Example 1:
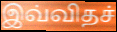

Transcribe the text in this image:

இவ்விதச்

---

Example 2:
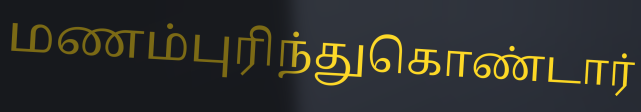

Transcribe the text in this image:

மணம்புரிந்துகொண்டார்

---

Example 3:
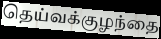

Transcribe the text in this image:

தெய்வக்குழந்தை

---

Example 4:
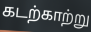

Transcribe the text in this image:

கடற்காற்று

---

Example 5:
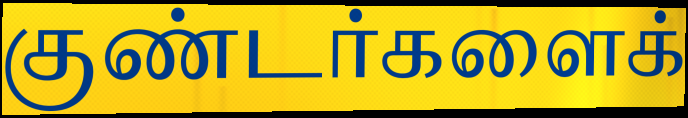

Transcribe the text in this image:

குண்டர்களைக்